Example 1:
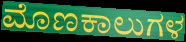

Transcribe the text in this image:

ಮೊಣಕಾಲುಗಳ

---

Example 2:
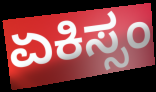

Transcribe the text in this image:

ಏಕಿಸ್ಸಂ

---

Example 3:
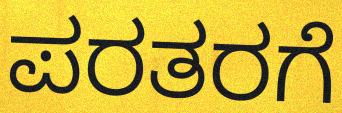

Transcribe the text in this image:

ಪರತರಗೆ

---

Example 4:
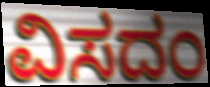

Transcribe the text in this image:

ವಿಸದಂ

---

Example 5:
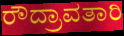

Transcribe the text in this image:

ರೌದ್ರಾವತಾರಿ